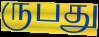
ருபது